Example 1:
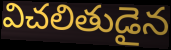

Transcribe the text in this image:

విచలితుడైన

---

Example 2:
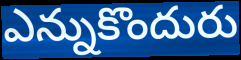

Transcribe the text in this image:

ఎన్నుకొందురు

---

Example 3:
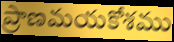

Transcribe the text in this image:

ప్రాణమయకోశము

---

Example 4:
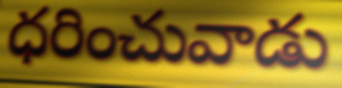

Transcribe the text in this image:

ధరించువాడు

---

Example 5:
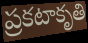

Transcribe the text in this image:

ప్రకటాకృతి